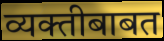
व्यक्तीबाबत